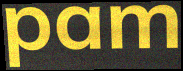
pam